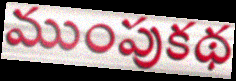
ముంపుకథ